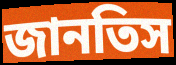
জানতিস